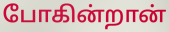
போகின்றான்